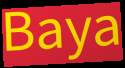
Baya